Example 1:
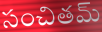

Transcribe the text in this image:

సంచితమ్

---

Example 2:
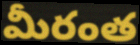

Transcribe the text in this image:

మీరంత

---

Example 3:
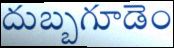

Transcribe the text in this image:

దుబ్బగూడెం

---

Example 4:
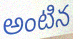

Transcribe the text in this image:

అంటిన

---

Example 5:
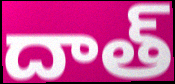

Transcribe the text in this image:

దాత్